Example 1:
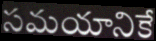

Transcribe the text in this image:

సమయానికే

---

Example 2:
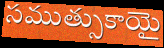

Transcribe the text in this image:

సముత్సుకాయై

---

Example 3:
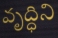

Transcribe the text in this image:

వృద్ధిని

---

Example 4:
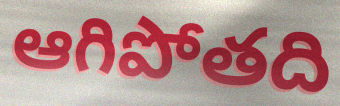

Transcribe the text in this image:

ఆగిపోతది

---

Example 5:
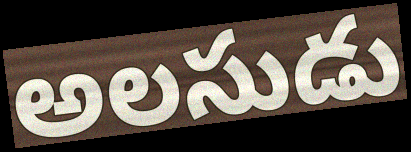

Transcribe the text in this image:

అలసుడు